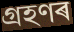
গ্ৰহণৰ